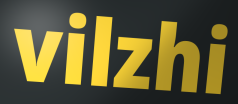
vilzhi